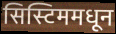
सिस्टिममधून